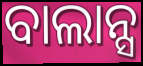
ବାଲାନ୍ସ